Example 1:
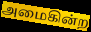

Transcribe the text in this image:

அமைகின்ற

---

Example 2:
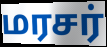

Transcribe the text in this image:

மரசர்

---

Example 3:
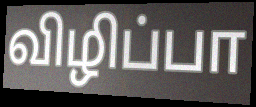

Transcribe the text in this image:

விழிப்பா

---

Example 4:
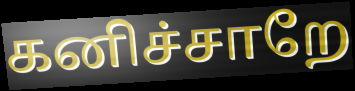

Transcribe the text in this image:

கனிச்சாறே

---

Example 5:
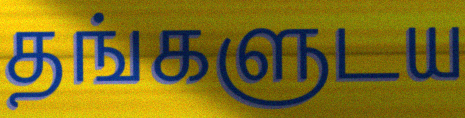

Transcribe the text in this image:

தங்களுடய